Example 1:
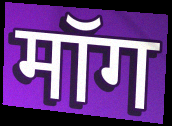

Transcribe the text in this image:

मॉग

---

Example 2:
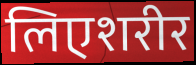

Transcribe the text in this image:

लिएशरीर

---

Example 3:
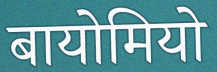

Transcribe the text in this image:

बायोमियो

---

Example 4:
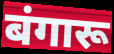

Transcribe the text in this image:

बंगारू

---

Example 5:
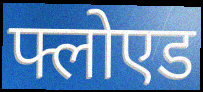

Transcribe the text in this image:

फ्लोएड